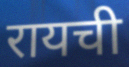
रायची